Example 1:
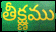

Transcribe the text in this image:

తీక్ష్ణము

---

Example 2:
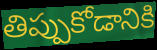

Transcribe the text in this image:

తిప్పుకోడానికి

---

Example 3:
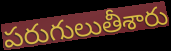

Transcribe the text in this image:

పరుగులుతీశారు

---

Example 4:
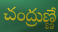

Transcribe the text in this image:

చంద్రుణ్ణే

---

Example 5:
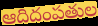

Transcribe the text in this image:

ఆదిదంపతుల